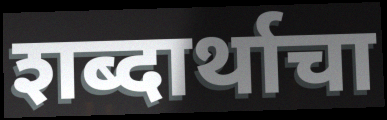
शब्दार्थाचा